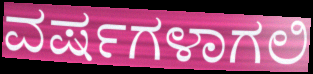
ವರ್ಷಗಳಾಗಲಿ